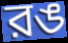
রঙ